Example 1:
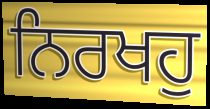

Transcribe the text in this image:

ਨਿਰਖਹੁ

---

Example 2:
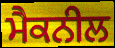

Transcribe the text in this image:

ਮੈਕਨੀਲ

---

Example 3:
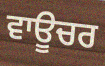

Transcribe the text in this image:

ਵਾਊਚਰ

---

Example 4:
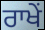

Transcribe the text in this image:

ਰਾਖੇਂ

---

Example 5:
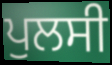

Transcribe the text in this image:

ਪੁਲਸੀ